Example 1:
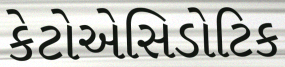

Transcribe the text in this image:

કેટોએસિડોટિક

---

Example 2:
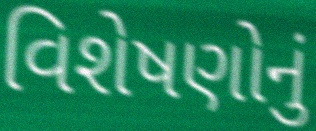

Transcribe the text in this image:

વિશેષણોનું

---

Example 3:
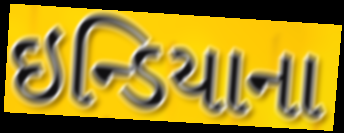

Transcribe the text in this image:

ઇન્ડિયાના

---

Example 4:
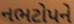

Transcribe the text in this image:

નભટોપને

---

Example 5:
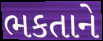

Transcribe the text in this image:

ભકતાને